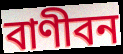
বাণীবন